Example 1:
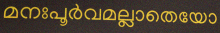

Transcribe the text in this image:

മനഃപൂർവമല്ലാതെയോ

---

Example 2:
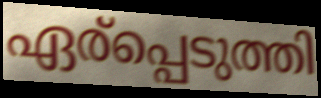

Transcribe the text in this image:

ഏര്പ്പെടുത്തി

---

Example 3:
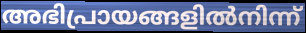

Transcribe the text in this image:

അഭിപ്രായങ്ങളിൽനിന്ന്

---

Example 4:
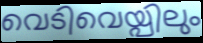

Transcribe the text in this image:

വെടിവെയ്പിലും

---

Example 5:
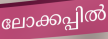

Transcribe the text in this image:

ലോക്കപ്പിൽ